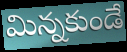
మిన్నకుండే